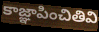
కాజ్ఞాపించితివి